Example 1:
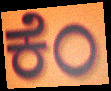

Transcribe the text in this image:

ಕೆಂ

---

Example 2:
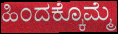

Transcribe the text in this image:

ಹಿಂದಕ್ಕೊಮ್ಮೆ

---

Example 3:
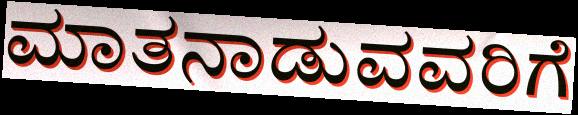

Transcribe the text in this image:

ಮಾತನಾಡುವವರಿಗೆ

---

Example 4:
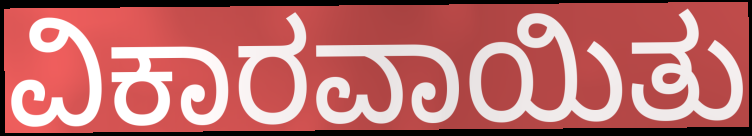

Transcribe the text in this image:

ವಿಕಾರವಾಯಿತು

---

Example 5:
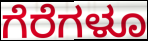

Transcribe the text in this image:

ಗೆರೆಗಳೂ